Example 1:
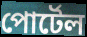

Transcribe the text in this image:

পোর্টেল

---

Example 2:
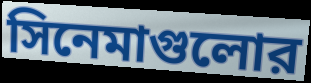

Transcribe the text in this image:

সিনেমাগুলোর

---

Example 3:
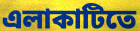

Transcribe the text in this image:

এলাকাটিতে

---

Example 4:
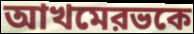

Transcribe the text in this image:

আখমেরভকে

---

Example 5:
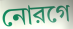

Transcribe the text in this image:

নোরগে